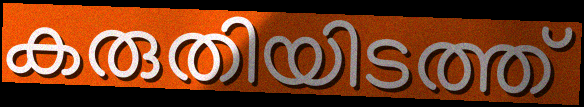
കരുതിയിടത്ത്